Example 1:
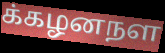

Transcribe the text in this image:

க்கழனநள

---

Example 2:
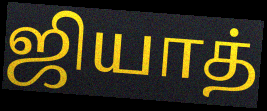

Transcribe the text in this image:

ஜியாத்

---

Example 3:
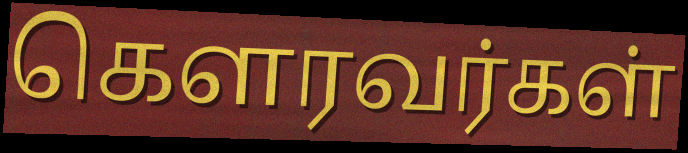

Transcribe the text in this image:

கெளரவர்கள்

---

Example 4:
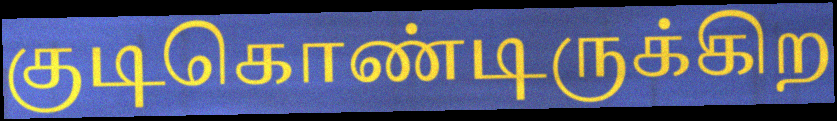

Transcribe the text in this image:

குடிகொண்டிருக்கிற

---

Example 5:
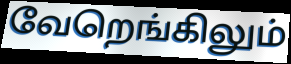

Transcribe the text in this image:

வேறெங்கிலும்